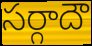
సర్గాదౌ